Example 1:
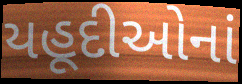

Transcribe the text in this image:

યહૂદીઓનાં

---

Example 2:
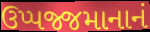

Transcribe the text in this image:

ઉપ્પજ્જમાનાનં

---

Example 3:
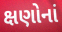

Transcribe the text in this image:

ક્ષણોનાં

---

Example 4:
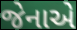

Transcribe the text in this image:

જેનાએ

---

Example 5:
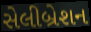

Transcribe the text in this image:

સેલીબ્રેશન